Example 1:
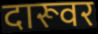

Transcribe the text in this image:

दारूवर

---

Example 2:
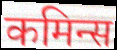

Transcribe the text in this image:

कमिन्स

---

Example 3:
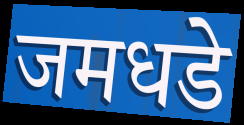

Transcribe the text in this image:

जमधडे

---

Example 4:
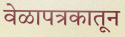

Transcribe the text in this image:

वेळापत्रकातून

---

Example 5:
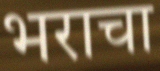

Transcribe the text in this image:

भराचा